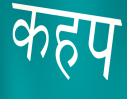
कहप